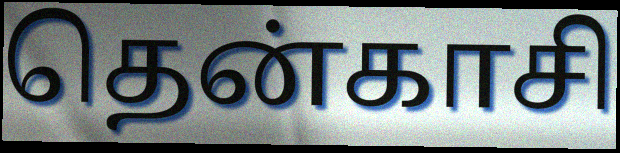
தென்காசி